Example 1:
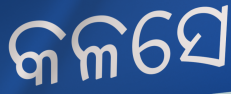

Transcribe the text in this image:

କଳସେ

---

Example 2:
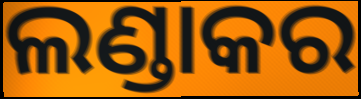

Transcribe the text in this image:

ଲଣ୍ଡାକର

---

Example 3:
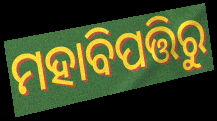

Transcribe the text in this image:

ମହାବିପତ୍ତିରୁ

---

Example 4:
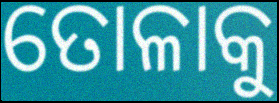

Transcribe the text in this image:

ତୋଳାକୁ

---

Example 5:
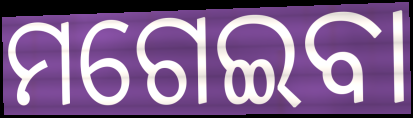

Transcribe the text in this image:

ମଗେଇବା